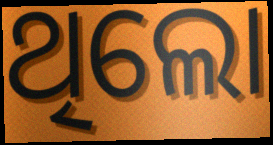
ଥିଲୋ